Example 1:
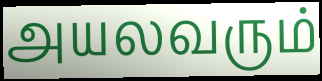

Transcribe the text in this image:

அயலவரும்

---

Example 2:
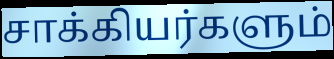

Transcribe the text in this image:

சாக்கியர்களும்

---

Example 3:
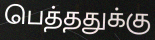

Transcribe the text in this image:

பெத்ததுக்கு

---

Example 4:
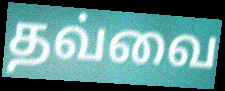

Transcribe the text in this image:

தவ்வை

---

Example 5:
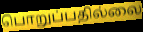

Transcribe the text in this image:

பொறுப்பதில்லை